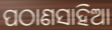
ପଠାଣସାହିଆ